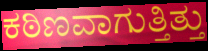
ಕಠಿಣವಾಗುತ್ತಿತ್ತು